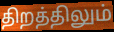
திறத்திலும்